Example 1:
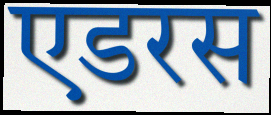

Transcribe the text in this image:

एडरस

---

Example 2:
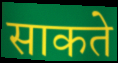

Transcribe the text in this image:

साकते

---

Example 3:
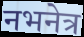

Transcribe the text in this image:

नभनेत्र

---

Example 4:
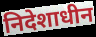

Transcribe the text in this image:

निदेशाधीन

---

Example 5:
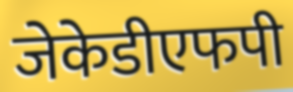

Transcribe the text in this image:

जेकेडीएफपी